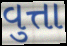
વુત્તા